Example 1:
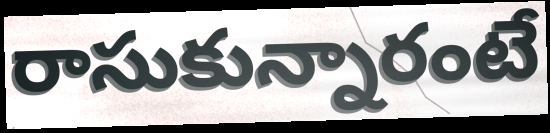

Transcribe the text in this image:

రాసుకున్నారంటే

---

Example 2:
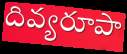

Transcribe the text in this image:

దివ్యరూపా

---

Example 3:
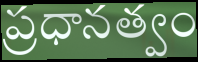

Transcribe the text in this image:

ప్రధానత్వం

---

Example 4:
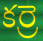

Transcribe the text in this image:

కర్రె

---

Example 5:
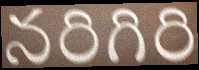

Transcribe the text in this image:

నరిగిరి